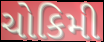
ચોકિમી